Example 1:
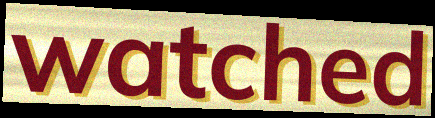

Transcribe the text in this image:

watched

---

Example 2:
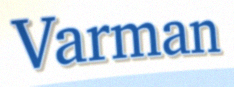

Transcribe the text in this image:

Varman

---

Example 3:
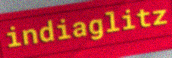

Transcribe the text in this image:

indiaglitz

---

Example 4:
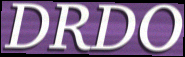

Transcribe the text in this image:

DRDO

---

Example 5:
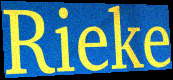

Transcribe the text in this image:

Rieke